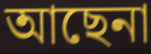
আছেনা